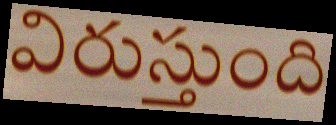
విరుస్తుంది